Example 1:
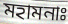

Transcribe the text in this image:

মহামনাঃ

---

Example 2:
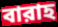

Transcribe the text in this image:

বারাহ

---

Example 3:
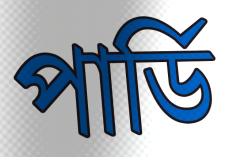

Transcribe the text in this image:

পার্ডি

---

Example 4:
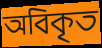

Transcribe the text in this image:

অবিকৃত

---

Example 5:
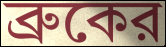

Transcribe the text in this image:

ব্রুকের